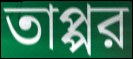
তাপ্পর